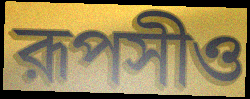
রূপসীও